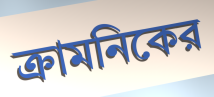
ক্রামনিকের